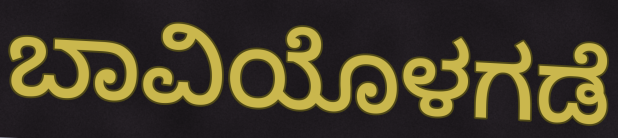
ಬಾವಿಯೊಳಗಡೆ